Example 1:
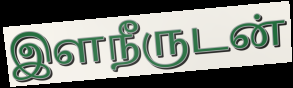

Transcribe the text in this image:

இளநீருடன்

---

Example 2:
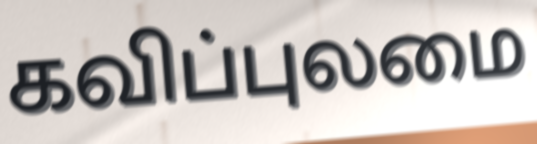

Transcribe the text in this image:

கவிப்புலமை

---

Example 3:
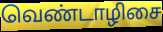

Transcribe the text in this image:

வெண்டாழிசை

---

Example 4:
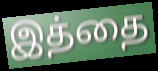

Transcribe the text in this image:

இத்தை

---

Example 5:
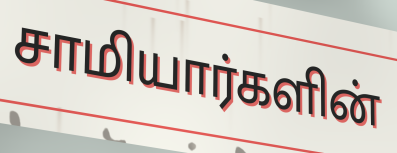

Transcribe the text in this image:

சாமியார்களின்